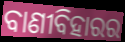
ବାଣୀବିହାରର